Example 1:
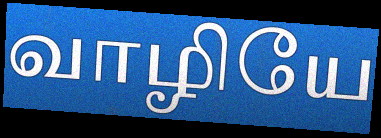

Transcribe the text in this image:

வாழியே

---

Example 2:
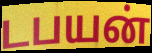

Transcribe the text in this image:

டபயன்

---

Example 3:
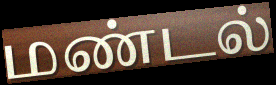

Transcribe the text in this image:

மண்டல்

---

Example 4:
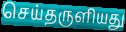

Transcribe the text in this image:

செய்தருளியது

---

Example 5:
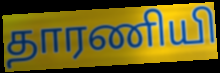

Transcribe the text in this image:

தாரணியி